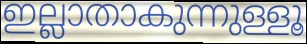
ഇല്ലാതാകുന്നുള്ളൂ